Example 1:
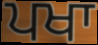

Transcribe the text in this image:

ਪਖਾ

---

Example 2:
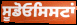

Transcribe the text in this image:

ਸੂਡੋਓਸਿਸਟਾਂ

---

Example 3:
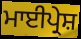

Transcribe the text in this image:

ਮਾਈਪ੍ਰੇਸ਼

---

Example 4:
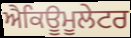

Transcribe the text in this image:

ਐਕਿਊਮੂਲੇਟਰ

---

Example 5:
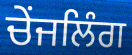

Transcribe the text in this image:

ਚੇਂਜਲਿੰਗ